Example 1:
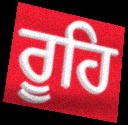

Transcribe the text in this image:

ਰੂਹਿ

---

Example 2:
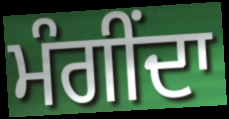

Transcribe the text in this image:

ਮੰਗੀਂਦਾ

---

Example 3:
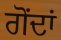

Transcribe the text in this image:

ਗੋਂਦਾਂ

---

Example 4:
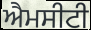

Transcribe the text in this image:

ਐਮਸੀਟੀ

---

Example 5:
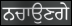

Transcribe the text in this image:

ਨਚਾਉਣਗੇ